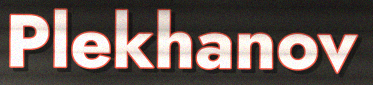
Plekhanov